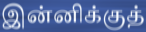
இன்னிக்குத்